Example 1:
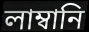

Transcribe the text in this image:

লাম্বানি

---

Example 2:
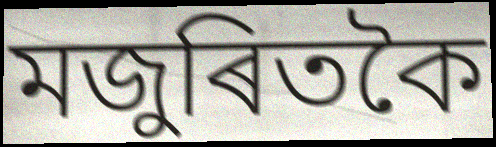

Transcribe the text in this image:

মজুৰিতকৈ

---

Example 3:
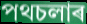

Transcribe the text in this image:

পথচলাৰ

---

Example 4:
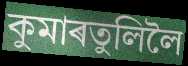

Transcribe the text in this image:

কুমাৰতুলিলৈ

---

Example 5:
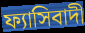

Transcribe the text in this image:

ফ্যাসিবাদী